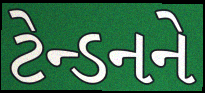
ટેન્ડનને